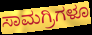
ಸಾಮಗ್ರಿಗಳೂ